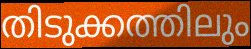
തിടുക്കത്തിലും